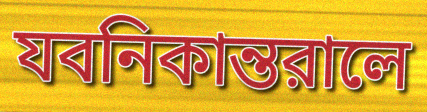
যবনিকান্তরালে